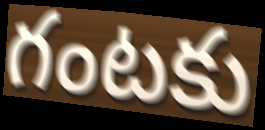
గంటకు